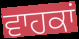
ਵਾਹਕਾਂ